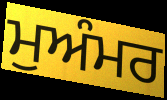
ਮੁਅੰਮਰ